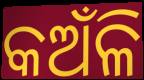
କଅଁଳି